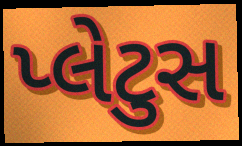
પ્લેટુસ